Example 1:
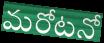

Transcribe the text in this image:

మరోటనో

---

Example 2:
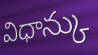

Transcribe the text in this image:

విధాన్కు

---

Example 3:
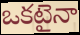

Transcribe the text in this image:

ఒకటైనా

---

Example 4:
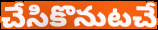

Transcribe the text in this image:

చేసికొనుటచే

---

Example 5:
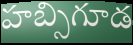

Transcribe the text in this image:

హబ్సిగూడ